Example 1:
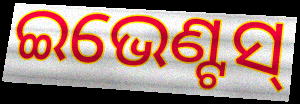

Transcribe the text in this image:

ଇଭେଣ୍ଟସ୍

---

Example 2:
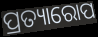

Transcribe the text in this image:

ପ୍ରତ୍ୟାରୋପ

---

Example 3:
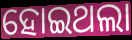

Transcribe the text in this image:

ହୋଇଥଲା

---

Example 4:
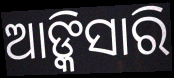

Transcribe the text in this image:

ଆଙ୍କିସାରି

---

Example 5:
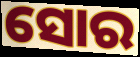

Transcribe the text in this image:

ସୋର